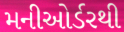
મનીઓર્ડરથી